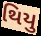
થિયુ